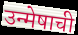
उन्मेषाची